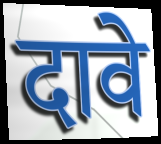
दावे